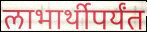
लाभार्थीपर्यंत